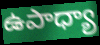
ఉపాధ్యా